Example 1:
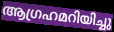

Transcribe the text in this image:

ആഗ്രഹമറിയിച്ചു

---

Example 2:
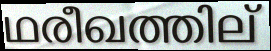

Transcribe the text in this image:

ഥരീഖത്തില്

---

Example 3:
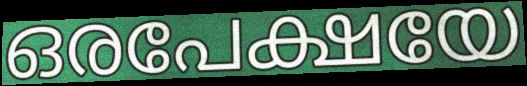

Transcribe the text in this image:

ഒരപേക്ഷയേ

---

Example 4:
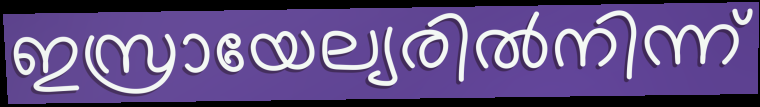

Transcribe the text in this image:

ഇസ്രായേല്യരിൽനിന്ന്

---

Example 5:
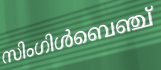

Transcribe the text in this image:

സിംഗിൾബെഞ്ച്